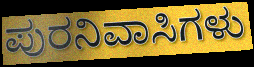
ಪುರನಿವಾಸಿಗಳು